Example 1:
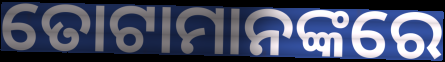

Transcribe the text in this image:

ତୋଟାମାନଙ୍କରେ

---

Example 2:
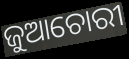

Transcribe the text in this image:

ଜୁଆଚୋରୀ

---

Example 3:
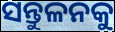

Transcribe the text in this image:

ସନ୍ତୁଳନକୁ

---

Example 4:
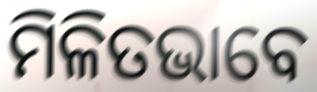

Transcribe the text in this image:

ମିଳିତଭାବେ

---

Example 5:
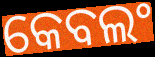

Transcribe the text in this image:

କେବଲଂ